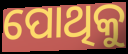
ପୋଥିକୁ